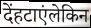
देंहटाएंलेकिन